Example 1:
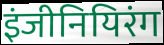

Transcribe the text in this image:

इंजीनियिरंग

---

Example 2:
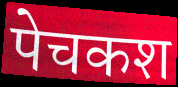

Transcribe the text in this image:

पेचकश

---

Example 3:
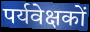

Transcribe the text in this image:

पर्यवेक्षकों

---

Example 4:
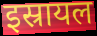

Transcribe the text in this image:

इस्रायल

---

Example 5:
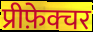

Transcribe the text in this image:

प्रीफ़ेक्चर